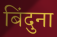
बिंदुना